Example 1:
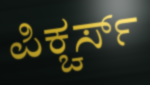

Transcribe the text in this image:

ಪಿಕ್ಚರ್ಸ್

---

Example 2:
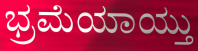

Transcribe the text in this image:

ಭ್ರಮೆಯಾಯ್ತು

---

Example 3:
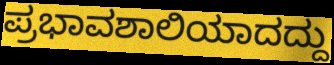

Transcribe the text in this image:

ಪ್ರಭಾವಶಾಲಿಯಾದದ್ದು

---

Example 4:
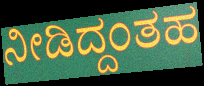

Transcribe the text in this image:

ನೀಡಿದ್ದಂತಹ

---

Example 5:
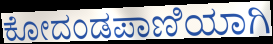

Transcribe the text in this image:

ಕೋದಂಡಪಾಣಿಯಾಗಿ